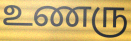
உணரு